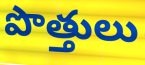
పొత్తులు